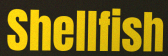
Shellfish